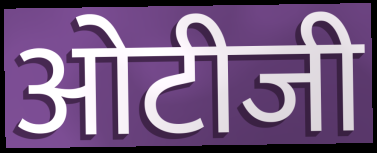
ओटीजी